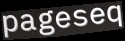
pageseq